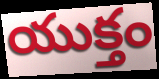
యుక్తం